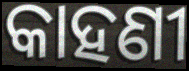
କାହଣୀ